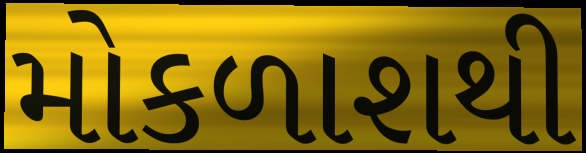
મોકળાશથી